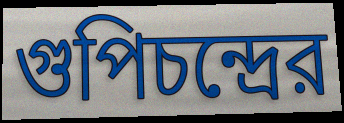
গুপিচন্দ্রের